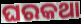
ଘରକଥା